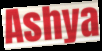
Ashya